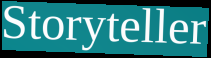
Storyteller